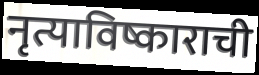
नृत्याविष्काराची